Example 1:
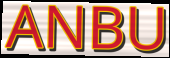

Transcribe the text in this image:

ANBU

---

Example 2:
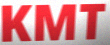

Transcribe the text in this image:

KMT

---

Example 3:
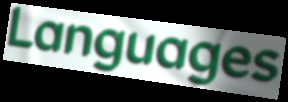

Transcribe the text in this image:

Languages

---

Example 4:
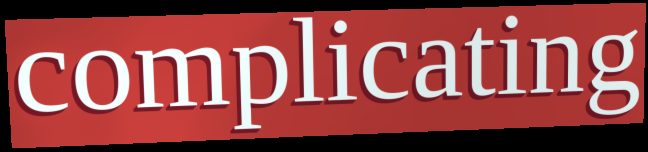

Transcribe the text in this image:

complicating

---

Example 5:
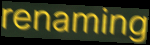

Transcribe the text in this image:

renaming